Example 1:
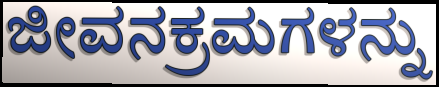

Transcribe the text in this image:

ಜೀವನಕ್ರಮಗಳನ್ನು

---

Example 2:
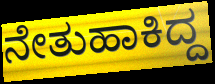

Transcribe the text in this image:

ನೇತುಹಾಕಿದ್ದ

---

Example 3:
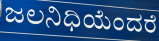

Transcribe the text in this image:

ಜಲನಿಧಿಯೆಂದರೆ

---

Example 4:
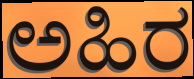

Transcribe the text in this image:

ಅಹಿರ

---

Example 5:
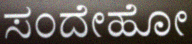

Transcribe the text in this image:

ಸಂದೇಹೋ